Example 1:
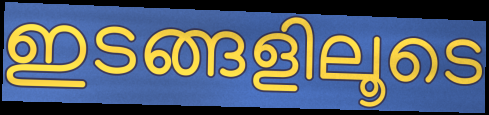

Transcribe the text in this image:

ഇടങ്ങളിലൂടെ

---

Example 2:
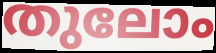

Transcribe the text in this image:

തുലോം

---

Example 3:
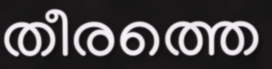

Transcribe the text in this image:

തീരത്തെ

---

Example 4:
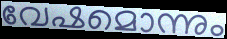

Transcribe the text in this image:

വേഷമൊന്നും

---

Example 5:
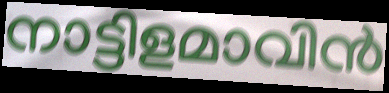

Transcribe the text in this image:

നാട്ടിളമാവിൻ